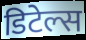
डिटेल्स